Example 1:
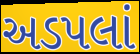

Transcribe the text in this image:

અડપલાં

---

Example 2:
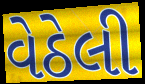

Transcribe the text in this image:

વેઠેલી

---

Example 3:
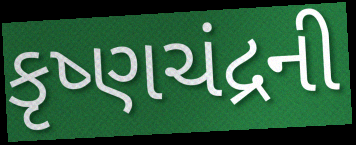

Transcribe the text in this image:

કૃષ્ણચંદ્રની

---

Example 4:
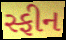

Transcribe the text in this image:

સ્ફીન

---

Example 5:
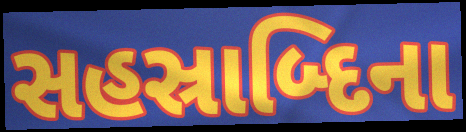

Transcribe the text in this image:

સહસ્રાબ્દિના